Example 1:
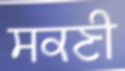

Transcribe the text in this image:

ਸਕਣੀ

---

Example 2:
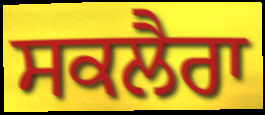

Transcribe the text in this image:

ਸਕਲੈਰਾ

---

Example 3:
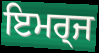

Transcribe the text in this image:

ਇਮਰ੍ਜ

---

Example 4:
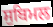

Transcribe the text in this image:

ਸੁਬਿਮਲ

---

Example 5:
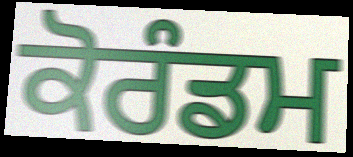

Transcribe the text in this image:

ਕੋਰੰਡਮ